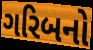
ગરિબનો